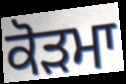
ਕੋੜਮਾ